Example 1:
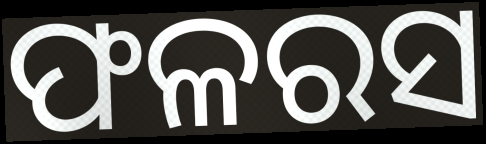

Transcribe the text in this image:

ଫଳରସ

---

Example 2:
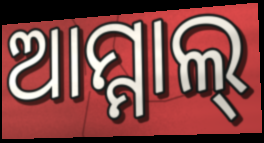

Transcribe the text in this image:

ଆମ୍ମାଲ୍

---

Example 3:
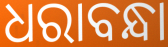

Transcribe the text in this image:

ଧରାବନ୍ଧା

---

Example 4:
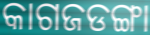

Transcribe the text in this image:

କାଗଜଡଙ୍ଗା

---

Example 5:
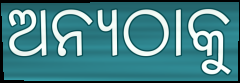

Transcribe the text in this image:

ଅନ୍ୟଠାକୁ